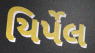
યિર્પેલ